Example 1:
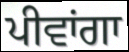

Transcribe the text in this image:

ਪੀਵਾਂਗਾ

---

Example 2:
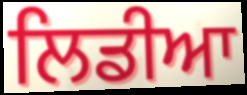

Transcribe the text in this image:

ਲਿਡੀਆ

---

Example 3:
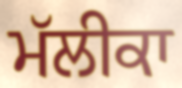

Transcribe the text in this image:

ਮੱਲੀਕਾ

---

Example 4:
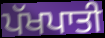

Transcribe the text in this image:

ਪੱਖਪਾਤੀ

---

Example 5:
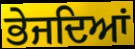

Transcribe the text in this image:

ਭੇਜਦਿਆਂ